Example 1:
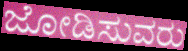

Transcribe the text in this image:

ಜೋಡಿಸುವರು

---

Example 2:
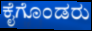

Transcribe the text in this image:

ಕೈಗೊಂಡರು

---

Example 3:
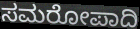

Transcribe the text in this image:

ಸಮರೋಪಾದಿ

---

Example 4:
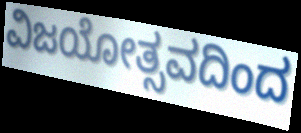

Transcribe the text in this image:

ವಿಜಯೋತ್ಸವದಿಂದ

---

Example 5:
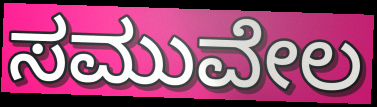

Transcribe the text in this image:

ಸಮುವೇಲ